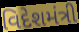
વિદેશમંત્રી